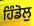
ਹਿੰਡੋਲੁ